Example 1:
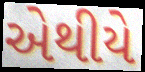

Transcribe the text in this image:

એથીયે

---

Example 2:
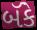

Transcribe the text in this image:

બૅંકે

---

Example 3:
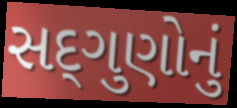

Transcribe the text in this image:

સદ્‌ગુણોનું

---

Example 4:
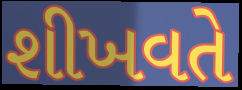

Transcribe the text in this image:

શીખવતે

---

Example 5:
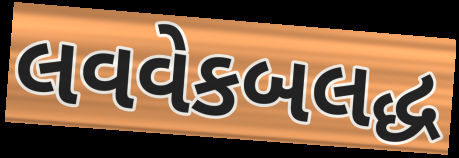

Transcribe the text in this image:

લવવેકબલદ્ધ